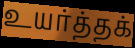
உயர்த்தக்